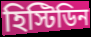
হিস্টিডিন